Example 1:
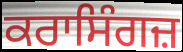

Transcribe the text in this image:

ਕਰਾਸਿੰਗਜ਼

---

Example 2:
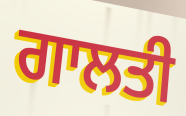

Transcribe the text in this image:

ਗਾਲਤੀ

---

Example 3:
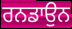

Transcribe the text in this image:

ਰਨਡਾਉਨ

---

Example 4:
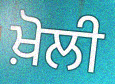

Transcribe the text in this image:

ਖ਼ੋਲੀ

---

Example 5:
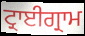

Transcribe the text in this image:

ਟ੍ਰਾਈਗ੍ਰਾਮ